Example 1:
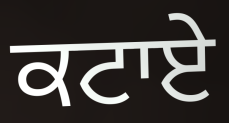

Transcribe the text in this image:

ਕਟਾਏ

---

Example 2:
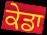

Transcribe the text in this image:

ਕੇਡਾ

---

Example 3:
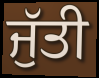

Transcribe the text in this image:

ਜੁੱਤੀ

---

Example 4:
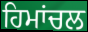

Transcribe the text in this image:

ਹਿਮਾਂਚਲ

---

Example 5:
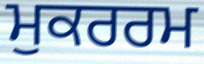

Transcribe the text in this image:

ਮੁਕਰਰਮ